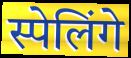
स्पेलिंगे